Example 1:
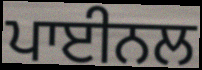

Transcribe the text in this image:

ਪਾਈਨਲ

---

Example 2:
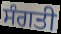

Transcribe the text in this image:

ਸੰਗਤੀ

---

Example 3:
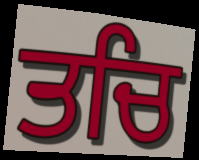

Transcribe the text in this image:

ਤਚਿ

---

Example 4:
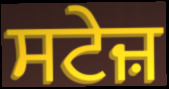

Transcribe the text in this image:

ਸਟੇਜ਼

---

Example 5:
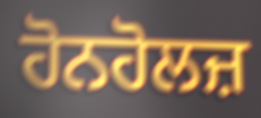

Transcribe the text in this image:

ਹੋਨਹੋਲਜ਼